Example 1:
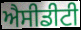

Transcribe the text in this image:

ਐਸੀਡੀਟੀ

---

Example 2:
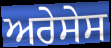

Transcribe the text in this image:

ਅਰੇਸੇਸ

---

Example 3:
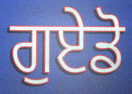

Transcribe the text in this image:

ਗੁਏਡੋ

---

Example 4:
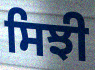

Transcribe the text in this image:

ਸਿਝੀ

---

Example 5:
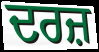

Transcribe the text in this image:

ਦਰਜ਼